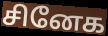
சினேக